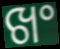
ଖଂ